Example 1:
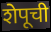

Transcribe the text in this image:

शेपूची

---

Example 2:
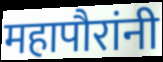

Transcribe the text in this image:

महापौरांनी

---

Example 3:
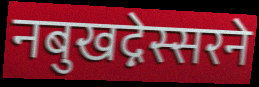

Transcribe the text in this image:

नबुखद्नेस्सरने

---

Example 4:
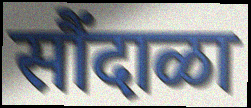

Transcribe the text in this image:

सौंदाळा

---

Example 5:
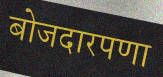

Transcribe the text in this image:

बोजदारपणा